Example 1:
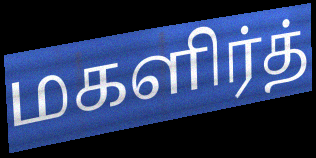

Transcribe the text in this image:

மகளிர்த்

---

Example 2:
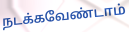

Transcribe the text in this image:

நடக்கவேண்டாம்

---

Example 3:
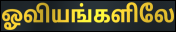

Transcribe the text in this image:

ஓவியங்களிலே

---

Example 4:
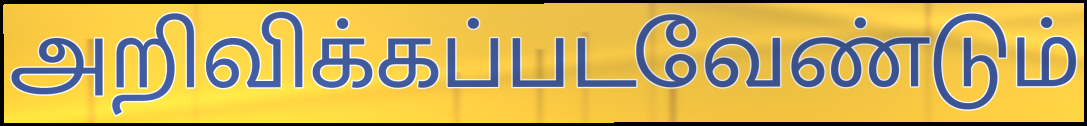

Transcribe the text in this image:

அறிவிக்கப்படவேண்டும்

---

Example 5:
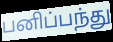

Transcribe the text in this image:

பனிப்பந்து